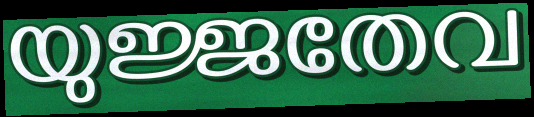
യുജ്ജതേവ